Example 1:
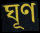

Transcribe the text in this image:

ঘূণ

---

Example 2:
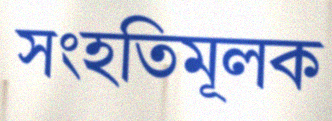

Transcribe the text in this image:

সংহতিমূলক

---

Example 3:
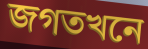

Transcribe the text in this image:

জগতখনে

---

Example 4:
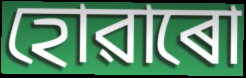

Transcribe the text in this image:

হোৱাৰো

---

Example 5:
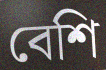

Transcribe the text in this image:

বেশি